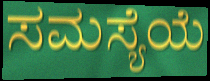
ಸಮಸ್ಯೆಯೆ